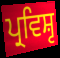
ਪ੍ਰਵਿਸ਼੍ਟ